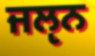
ਜਲੵਨ